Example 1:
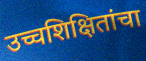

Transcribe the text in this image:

उच्चशिक्षितांचा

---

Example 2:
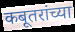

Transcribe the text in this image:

कबूतरांच्या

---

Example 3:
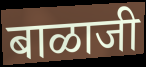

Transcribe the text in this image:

बाळाजी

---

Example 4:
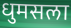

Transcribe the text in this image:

धुमसला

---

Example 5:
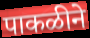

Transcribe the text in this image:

पाकळीने